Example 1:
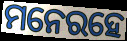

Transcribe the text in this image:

ମନେରହେ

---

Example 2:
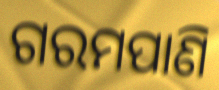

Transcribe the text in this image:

ଗରମପାଣି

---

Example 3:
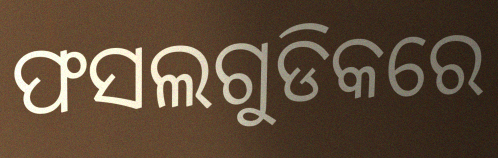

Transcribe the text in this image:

ଫସଲଗୁଡିକରେ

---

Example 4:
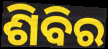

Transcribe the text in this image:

ଶିବିର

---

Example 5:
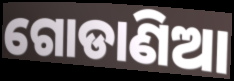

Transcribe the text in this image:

ଗୋଡାଣିଆ